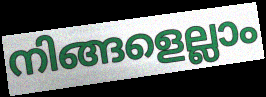
നിങ്ങളെല്ലാം